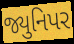
જ્યુનિપર